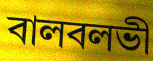
বালবলভী